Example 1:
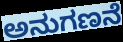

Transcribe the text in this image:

ಅನುಗಣನೆ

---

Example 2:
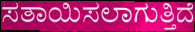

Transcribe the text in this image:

ಸತಾಯಿಸಲಾಗುತ್ತಿದೆ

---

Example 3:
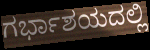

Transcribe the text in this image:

ಗರ್ಭಾಶಯದಲ್ಲಿ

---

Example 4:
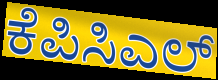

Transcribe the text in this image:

ಕೆಪಿಸಿಎಲ್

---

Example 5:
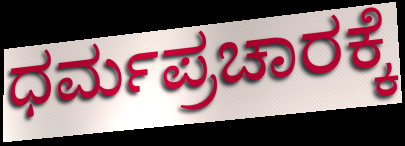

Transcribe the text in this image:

ಧರ್ಮಪ್ರಚಾರಕ್ಕೆ